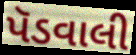
પૅડવાલી